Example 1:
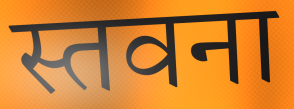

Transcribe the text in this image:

स्तवना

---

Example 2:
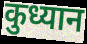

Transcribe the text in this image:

कुध्यान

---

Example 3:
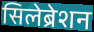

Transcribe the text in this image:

सिलेब्रेशन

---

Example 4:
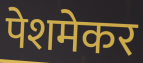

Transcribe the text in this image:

पेशमेकर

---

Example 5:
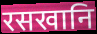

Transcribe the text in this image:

रसखानि